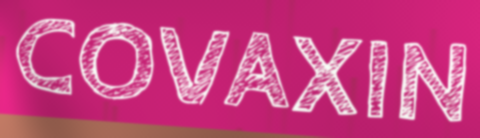
COVAXIN